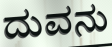
ದುವನು